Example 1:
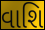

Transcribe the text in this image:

વાશિ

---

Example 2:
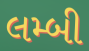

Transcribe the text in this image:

લમ્બી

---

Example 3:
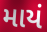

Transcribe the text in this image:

માયં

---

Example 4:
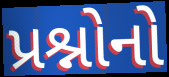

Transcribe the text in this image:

પ્રશ્નોનો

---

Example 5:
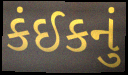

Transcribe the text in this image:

કંઈકનું